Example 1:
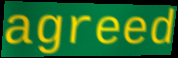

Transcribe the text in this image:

agreed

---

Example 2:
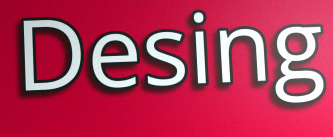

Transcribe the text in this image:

Desing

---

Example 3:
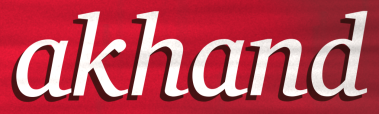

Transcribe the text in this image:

akhand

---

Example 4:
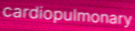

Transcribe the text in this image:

cardiopulmonary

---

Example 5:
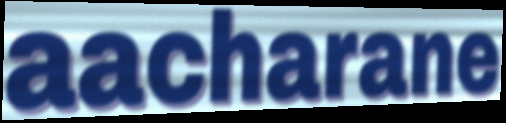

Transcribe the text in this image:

aacharane